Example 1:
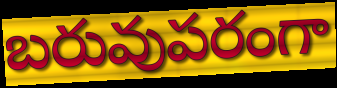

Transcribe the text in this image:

బరువుపరంగా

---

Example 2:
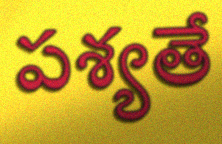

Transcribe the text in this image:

పశ్యతే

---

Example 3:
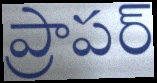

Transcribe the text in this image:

ప్రాపర్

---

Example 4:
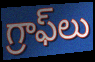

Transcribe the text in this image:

గ్రాఫ్‌లు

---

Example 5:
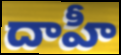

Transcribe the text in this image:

దాహీ